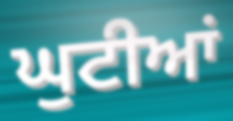
ਘੁਟੀਆਂ